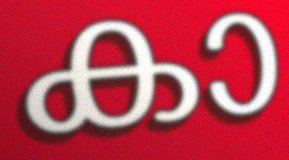
കാ